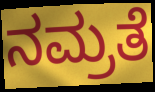
ನಮ್ರತೆ